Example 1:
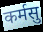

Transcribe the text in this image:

कर्मसु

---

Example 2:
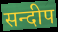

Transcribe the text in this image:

सन्दीप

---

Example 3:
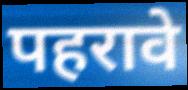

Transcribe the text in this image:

पहरावे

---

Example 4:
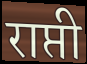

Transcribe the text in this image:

राप्ती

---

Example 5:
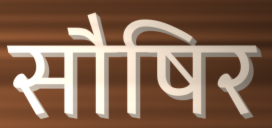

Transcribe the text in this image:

सौषिर